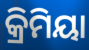
କ୍ରିମିୟା